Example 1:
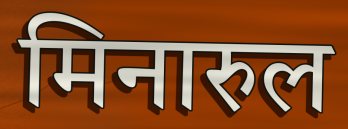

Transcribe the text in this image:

मिनारुल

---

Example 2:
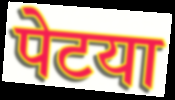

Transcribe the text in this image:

पेटया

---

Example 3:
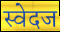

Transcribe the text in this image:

स्वेदज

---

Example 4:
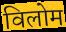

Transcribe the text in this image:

विलोम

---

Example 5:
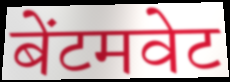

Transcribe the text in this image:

बेंटमवेट